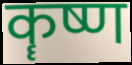
कॄष्ण